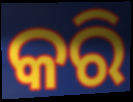
କରି